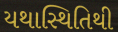
યથાસ્થિતિથી